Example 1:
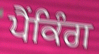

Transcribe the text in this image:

ਪੈਂਕਿੰਗ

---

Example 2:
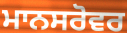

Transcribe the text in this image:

ਮਾਨਸਰੋਵਰ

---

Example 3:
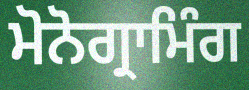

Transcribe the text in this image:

ਮੋਨੋਗ੍ਰਾਮਿੰਗ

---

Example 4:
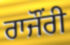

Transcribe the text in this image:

ਰਾਜੌਂਰੀ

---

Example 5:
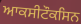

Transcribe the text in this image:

ਆਕਸੀਟੌਕਸਿਨ